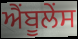
ਐਂਬੂਲੇਂਸ